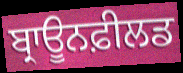
ਬ੍ਰਾਊਨਫ਼ੀਲਡ